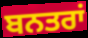
ਬਨਤਰਾਂ